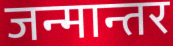
जन्मान्तर